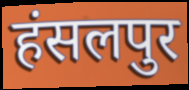
हंसलपुर